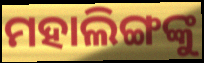
ମହାଲିଙ୍ଗଙ୍କୁ